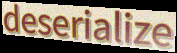
deserialize